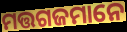
ମତ୍ତଗଜମାନେ